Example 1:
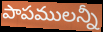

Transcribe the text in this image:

పాపములన్నీ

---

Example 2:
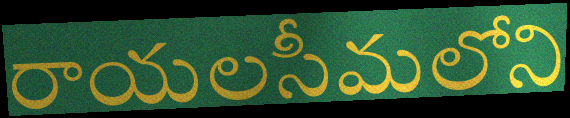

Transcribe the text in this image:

రాయలసీమలోని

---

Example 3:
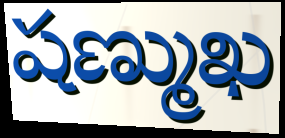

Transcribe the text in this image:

షణ్ముఖ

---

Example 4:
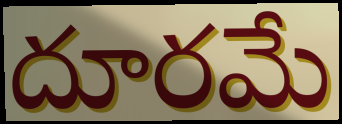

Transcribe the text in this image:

దూరమే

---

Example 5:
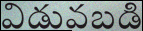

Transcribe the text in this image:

విడువబడి